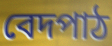
বেদপাঠ